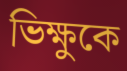
ভিক্ষুকে